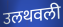
उलथवली